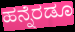
ಹನ್ನೆರಡೂ